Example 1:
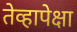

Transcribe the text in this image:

तेव्हापेक्षा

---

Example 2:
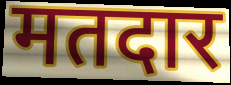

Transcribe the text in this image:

मतदार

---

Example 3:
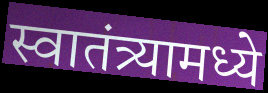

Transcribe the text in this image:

स्वातंत्र्यामध्ये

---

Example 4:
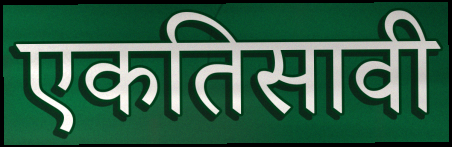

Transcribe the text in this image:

एकतिसावी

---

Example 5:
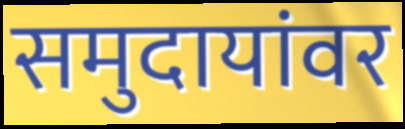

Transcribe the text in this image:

समुदायांवर